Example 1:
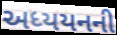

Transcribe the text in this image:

અધ્યયનની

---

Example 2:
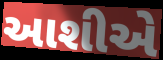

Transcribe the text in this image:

આશીએ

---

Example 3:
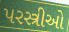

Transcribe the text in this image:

પરસ્ત્રીઓ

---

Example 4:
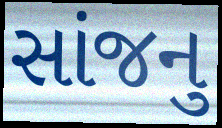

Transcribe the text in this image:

સાંજનુ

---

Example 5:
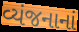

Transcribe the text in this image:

વ્યંજનાનાં